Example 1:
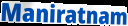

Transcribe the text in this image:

Maniratnam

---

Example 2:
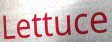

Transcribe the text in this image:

Lettuce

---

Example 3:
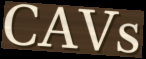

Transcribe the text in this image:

CAVs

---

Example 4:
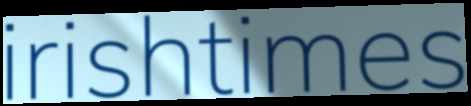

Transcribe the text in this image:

irishtimes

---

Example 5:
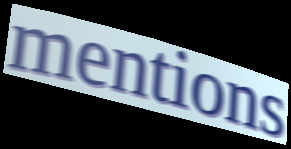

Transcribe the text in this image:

mentions